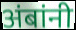
अंबांनी